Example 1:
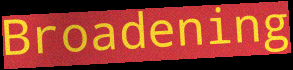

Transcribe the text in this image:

Broadening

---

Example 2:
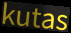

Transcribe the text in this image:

kutas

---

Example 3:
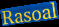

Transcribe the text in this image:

Rasoal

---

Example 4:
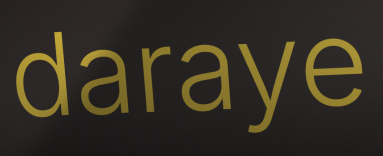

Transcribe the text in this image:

daraye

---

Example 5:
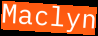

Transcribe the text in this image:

Maclyn